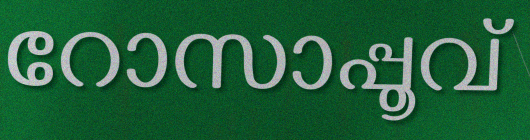
റോസാപ്പൂവ്